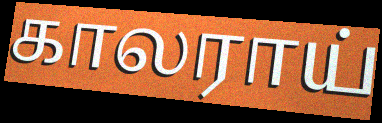
காலராய்